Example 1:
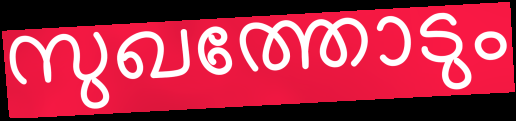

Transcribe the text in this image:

സുഖത്തോടും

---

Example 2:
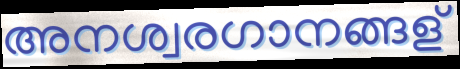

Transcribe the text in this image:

അനശ്വരഗാനങ്ങള്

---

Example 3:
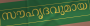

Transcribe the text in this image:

സൗഹൃദവുമായ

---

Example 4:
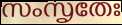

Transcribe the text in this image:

സംസൃതേഃ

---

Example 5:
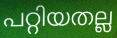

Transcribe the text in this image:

പറ്റിയതല്ല